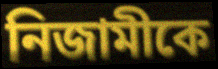
নিজামীকে